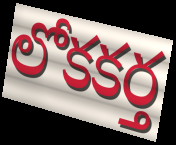
లోకకర్త